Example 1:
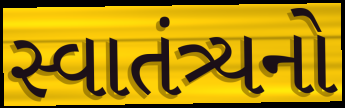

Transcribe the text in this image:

સ્વાતંત્ર્યનો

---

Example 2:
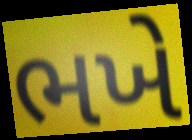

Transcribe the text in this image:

ભખે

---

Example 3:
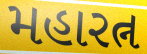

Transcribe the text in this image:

મહારત્ન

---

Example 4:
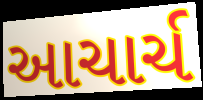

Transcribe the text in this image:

આચાર્ચ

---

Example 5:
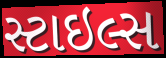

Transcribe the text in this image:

સ્ટાઇલ્સ